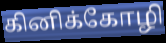
கினிக்கோழி